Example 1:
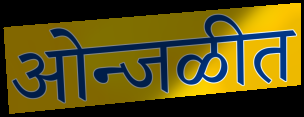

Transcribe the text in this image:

ओन्जळीत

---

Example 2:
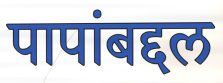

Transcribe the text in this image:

पापांबद्दल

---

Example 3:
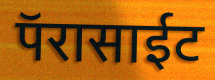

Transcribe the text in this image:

पॅरासाईट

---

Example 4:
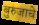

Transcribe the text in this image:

बुरुजाचे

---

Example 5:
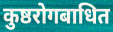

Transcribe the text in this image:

कुष्ठरोगबाधित